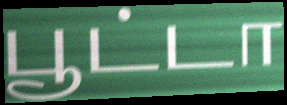
பூட்டா